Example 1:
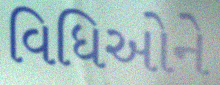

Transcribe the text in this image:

વિધિઓને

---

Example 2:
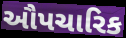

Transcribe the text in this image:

ઔપચારિક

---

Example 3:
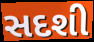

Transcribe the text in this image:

સદશી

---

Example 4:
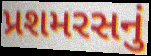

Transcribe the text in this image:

પ્રશમરસનું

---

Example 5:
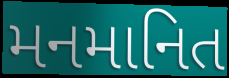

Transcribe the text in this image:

મનમાનિત